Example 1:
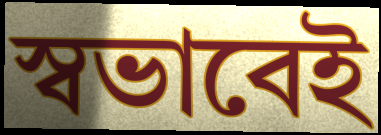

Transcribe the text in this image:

স্বভাবেই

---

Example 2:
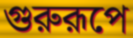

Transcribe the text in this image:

গুরুরূপে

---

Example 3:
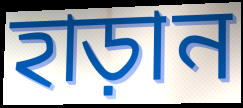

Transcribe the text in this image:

হাড়ান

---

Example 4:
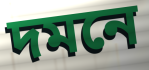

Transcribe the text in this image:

দমনে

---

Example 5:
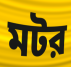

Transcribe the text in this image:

মটর